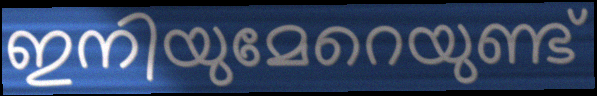
ഇനിയുമേറെയുണ്ട്